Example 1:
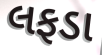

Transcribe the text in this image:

લફડા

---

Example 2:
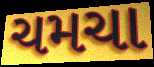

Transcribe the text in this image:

ચમચા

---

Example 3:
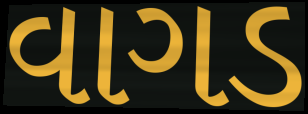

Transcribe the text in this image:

વાગડ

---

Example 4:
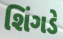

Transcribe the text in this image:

શિંગડે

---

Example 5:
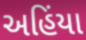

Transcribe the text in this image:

અહિંયા